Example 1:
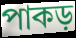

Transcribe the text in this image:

পাকড়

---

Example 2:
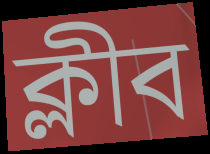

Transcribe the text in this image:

ক্লীব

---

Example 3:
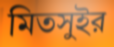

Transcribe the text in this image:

মিতসুইর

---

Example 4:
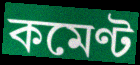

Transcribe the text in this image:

কমেণ্ট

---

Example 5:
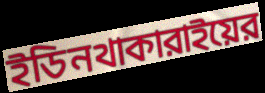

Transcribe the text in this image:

ইডিনথাকারাইয়ের